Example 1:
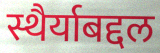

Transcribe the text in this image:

स्थैर्याबद्दल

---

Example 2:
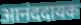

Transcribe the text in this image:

आनंददायक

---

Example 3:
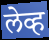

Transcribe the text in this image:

लेव्ह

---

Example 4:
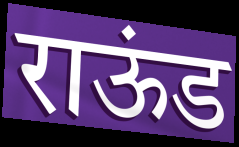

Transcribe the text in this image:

राऊंड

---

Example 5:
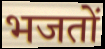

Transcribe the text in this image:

भजतों